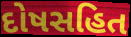
દોષસહિત